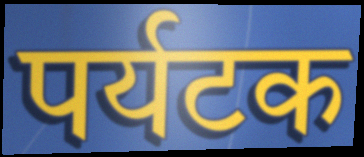
पर्यटक